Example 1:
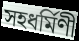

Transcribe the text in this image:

সহধৰ্মিণী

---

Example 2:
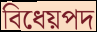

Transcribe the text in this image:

বিধেয়পদ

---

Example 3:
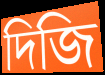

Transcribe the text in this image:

দিজি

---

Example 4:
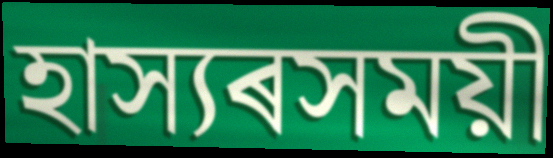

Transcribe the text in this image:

হাস্যৰসময়ী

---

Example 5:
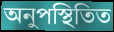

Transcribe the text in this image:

অনুপস্থিতিত